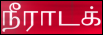
நீராடக்